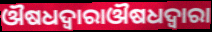
ଔଷଧଦ୍ଵାରାଔଷଧଦ୍ବାରା